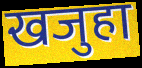
खजुहा